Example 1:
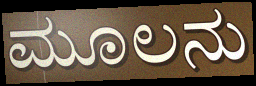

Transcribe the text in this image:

ಮೂಲನು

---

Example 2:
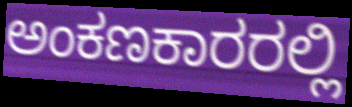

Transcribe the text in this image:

ಅಂಕಣಕಾರರಲ್ಲಿ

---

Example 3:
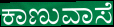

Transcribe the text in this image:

ಕಾಣುವಾಸೆ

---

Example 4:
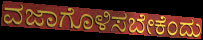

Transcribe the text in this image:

ವಜಾಗೊಳಿಸಬೇಕೆಂದು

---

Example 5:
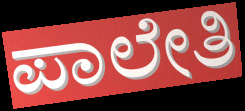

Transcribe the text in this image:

ಪಾಲೇತಿ